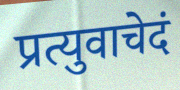
प्रत्युवाचेदं